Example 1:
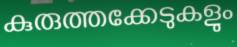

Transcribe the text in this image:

കുരുത്തക്കേടുകളും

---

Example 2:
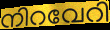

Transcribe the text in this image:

നിറവേറി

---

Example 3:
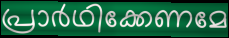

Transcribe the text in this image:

പ്രാർഥിക്കേണമേ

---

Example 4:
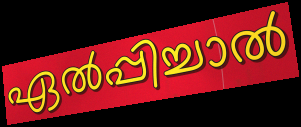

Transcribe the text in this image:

ഏൽപ്പിച്ചാൽ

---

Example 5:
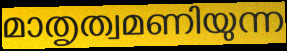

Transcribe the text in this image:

മാതൃത്വമണിയുന്ന